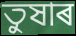
তুষাৰ